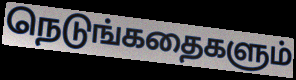
நெடுங்கதைகளும்